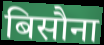
बिसौना